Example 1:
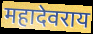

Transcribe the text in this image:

महादेवराय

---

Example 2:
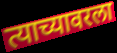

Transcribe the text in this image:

त्याच्यावरला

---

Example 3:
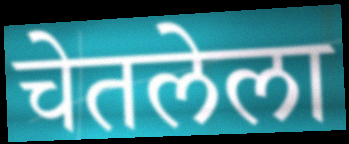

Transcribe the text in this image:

चेतलेला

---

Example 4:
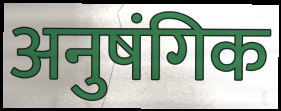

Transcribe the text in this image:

अनुषंगिक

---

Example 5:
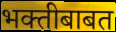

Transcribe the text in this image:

भक्तीबाबत